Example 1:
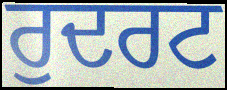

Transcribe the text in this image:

ਰੁਦਰਟ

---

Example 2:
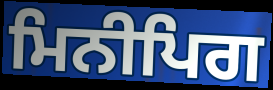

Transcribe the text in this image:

ਮਿਨੀਪਿਗ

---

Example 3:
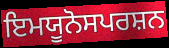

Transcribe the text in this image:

ਇਮਯੂਨੋਸਪਰਸ਼ਨ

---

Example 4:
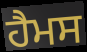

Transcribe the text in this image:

ਹੈਮਸ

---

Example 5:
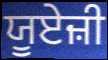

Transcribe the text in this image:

ਯੂਏਜ਼ੀ